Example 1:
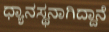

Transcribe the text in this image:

ಧ್ಯಾನಸ್ಥನಾಗಿದ್ದಾನೆ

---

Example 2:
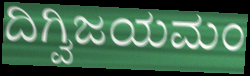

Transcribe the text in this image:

ದಿಗ್ವಿಜಯಮಂ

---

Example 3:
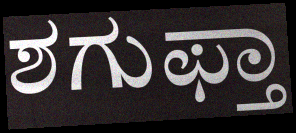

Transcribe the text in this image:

ಶಗುಫ್ತಾ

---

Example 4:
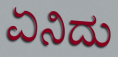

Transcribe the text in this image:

ಏನಿದು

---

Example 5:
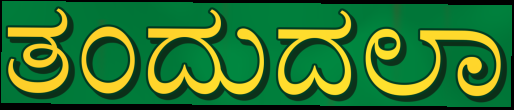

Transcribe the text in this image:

ತಂದುದಲಾ